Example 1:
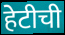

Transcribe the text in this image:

हेटीची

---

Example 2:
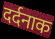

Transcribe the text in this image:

दर्दनाक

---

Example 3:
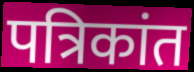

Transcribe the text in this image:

पत्रिकांत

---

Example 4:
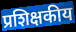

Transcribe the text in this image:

प्रशिक्षकीय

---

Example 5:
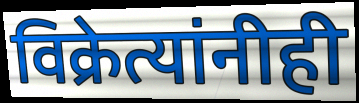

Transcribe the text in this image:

विक्रेत्यांनीही